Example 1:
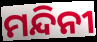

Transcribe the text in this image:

ମନ୍ଦିନୀ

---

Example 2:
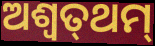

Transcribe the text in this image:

ଅଶ୍ୱତ୍‌ଥମ୍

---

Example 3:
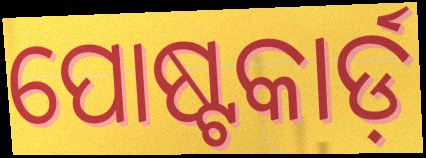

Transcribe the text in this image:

ପୋଷ୍ଟକାର୍ଡ଼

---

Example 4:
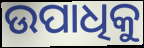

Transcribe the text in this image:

ଉପାଧିକୁ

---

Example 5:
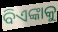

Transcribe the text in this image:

ବିଏଙ୍କାକୁ